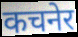
कचनेर